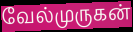
வேல்முருகன்